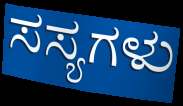
ಸಸ್ಯಗಳು